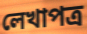
লেখাপত্র